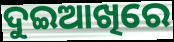
ଦୁଇଆଖିରେ